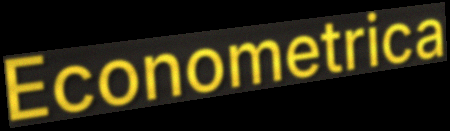
Econometrica